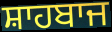
ਸ਼ਾਹਬਾਜ